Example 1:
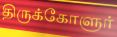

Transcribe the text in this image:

திருக்கோளுர்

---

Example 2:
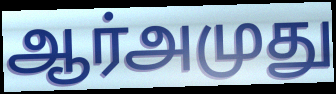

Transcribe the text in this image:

ஆர்அமுது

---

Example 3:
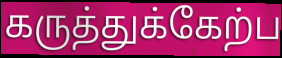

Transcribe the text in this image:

கருத்துக்கேற்ப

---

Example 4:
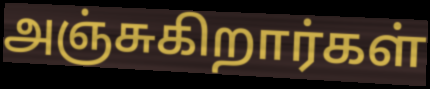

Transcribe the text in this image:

அஞ்சுகிறார்கள்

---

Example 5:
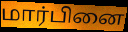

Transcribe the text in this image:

மார்பினை